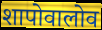
शापोवालोव